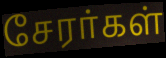
சேரர்கள்